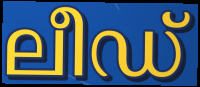
ലീഡ്